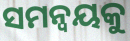
ସମନ୍ବୟକୁ